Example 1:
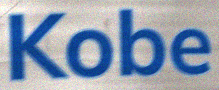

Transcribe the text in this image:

Kobe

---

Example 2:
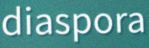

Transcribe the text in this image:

diaspora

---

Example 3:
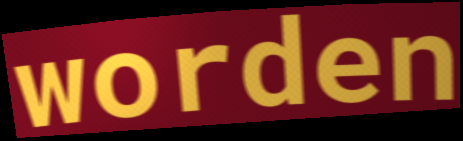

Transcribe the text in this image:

worden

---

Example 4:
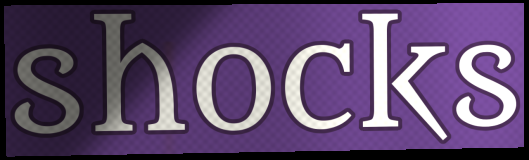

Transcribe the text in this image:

shocks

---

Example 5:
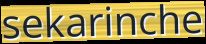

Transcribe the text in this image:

sekarinche